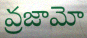
వ్రజామో